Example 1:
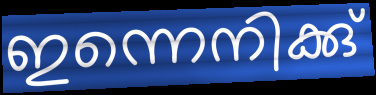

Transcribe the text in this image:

ഇന്നെനിക്കു്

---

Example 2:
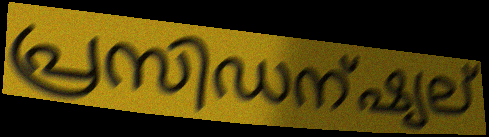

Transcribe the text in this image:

പ്രസിഡന്ഷ്യല്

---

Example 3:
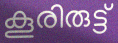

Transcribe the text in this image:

കൂരിരുട്ട്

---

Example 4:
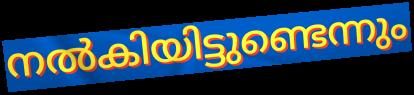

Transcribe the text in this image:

നൽകിയിട്ടുണ്ടെന്നും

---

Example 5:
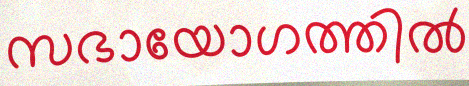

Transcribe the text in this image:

സഭായോഗത്തിൽ